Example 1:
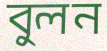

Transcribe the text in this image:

বুলন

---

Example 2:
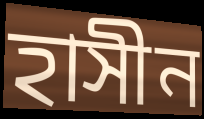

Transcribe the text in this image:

হাসীন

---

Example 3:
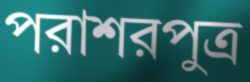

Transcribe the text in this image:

পরাশরপুত্র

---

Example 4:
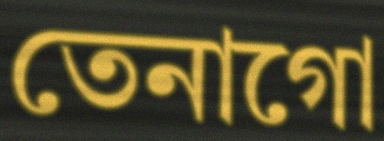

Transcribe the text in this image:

তেনাগো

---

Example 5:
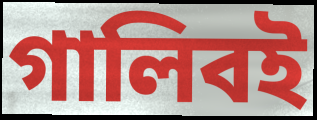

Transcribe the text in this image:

গালিবই